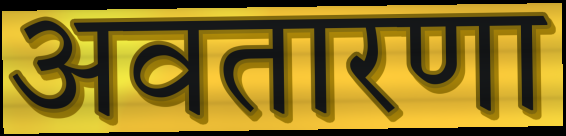
अवतारणा